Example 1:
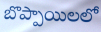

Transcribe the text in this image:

బొప్పాయిలలో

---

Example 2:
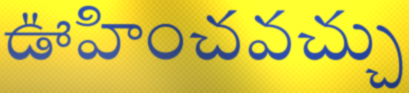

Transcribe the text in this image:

ఊహించవచ్చు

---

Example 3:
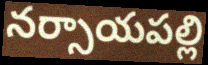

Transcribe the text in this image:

నర్సాయపల్లి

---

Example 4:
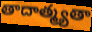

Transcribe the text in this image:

తాదాత్మ్యతా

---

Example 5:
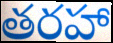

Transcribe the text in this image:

తరహా